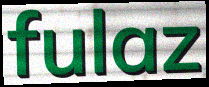
fulaz